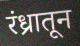
रंध्रातून